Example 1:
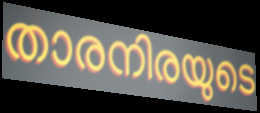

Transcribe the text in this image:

താരനിരയുടെ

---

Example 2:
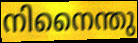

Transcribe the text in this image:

നിനൈന്തു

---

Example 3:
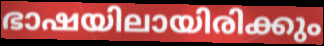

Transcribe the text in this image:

ഭാഷയിലായിരിക്കും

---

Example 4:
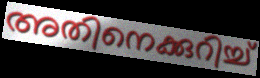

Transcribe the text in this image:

അതിനെക്കുറിച്ച്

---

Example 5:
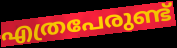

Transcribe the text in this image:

എത്രപേരുണ്ട്